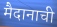
मैदानाची